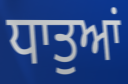
ਧਾਤੁਆਂ